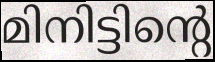
മിനിട്ടിന്റെ